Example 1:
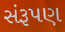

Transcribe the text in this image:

સંરૂપણ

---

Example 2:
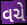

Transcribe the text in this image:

વચે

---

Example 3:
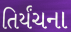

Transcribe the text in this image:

તિર્યંચના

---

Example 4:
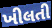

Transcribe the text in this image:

ખીલતી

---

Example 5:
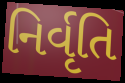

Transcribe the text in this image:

નિર્વૃતિ